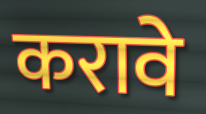
करावे